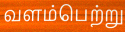
வளம்பெற்று